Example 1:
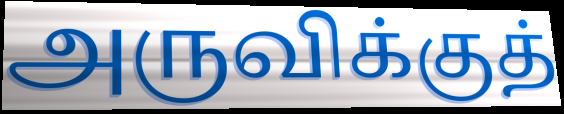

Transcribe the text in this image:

அருவிக்குத்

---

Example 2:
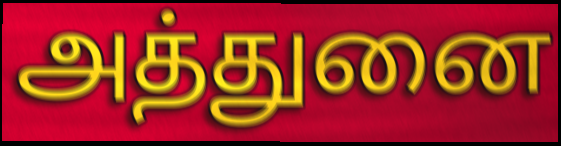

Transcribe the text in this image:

அத்துனை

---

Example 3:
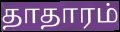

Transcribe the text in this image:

தாதாரம்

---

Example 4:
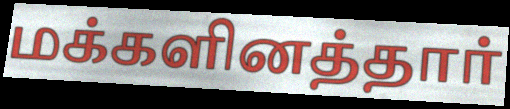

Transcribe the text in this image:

மக்களினத்தார்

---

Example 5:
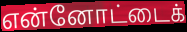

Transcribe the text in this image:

என்னோட்டைக்